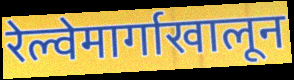
रेल्वेमार्गाखालून